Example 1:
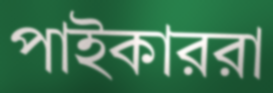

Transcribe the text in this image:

পাইকাররা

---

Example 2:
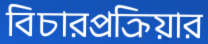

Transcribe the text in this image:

বিচারপ্রক্রিয়ার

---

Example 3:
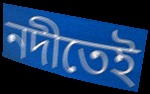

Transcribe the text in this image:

নদীতেই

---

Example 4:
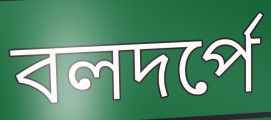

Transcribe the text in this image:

বলদর্পে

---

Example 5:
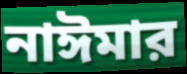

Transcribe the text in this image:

নাঈমার